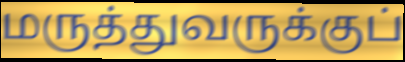
மருத்துவருக்குப்